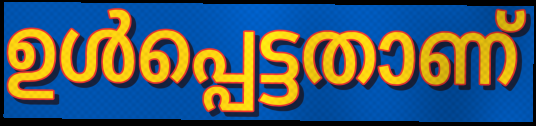
ഉൾപ്പെട്ടതാണ്